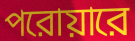
পরোয়ারে